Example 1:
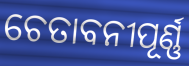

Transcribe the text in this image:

ଚେତାବନୀପୂର୍ଣ୍ଣ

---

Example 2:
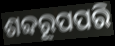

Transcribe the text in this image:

ଶବ୍ଦରୂପପରି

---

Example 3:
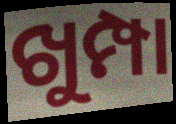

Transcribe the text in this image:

ଖୁମ୍ପା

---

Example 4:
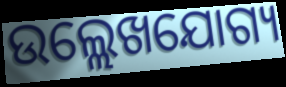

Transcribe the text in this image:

ଉଲ୍ଲେଖଯୋଗ୍ୟ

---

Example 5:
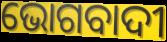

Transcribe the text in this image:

ଭୋଗବାଦୀ